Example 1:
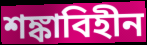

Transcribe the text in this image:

শঙ্কাবিহীন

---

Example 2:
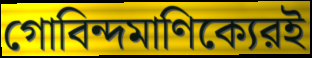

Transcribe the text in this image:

গোবিন্দমাণিক্যেরই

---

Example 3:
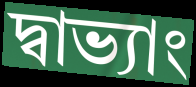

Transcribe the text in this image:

দ্বাভ্যাং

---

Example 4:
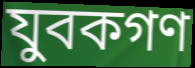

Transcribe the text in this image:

যুবকগণ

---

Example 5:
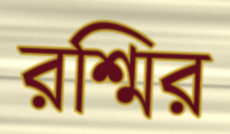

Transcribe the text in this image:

রশ্মির